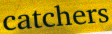
catchers